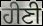
ਹੀਣੀ